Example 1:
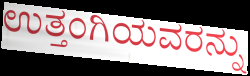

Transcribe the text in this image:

ಉತ್ತಂಗಿಯವರನ್ನು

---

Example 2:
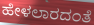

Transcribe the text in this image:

ಹೇಳಲಾರದಂತೆ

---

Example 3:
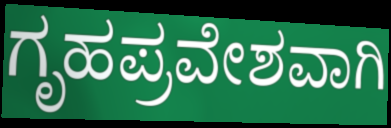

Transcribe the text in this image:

ಗೃಹಪ್ರವೇಶವಾಗಿ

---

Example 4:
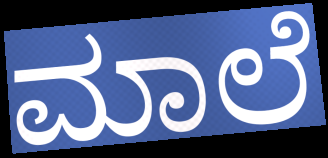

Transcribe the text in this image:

ಮಾಲೆ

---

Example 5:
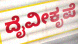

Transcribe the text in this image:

ದೈವೀಕೃಪೆ